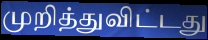
முறித்துவிட்டது